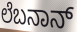
ಲೆಬನಾನ್